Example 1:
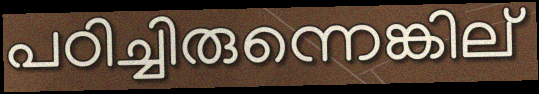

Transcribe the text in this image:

പഠിച്ചിരുന്നെങ്കില്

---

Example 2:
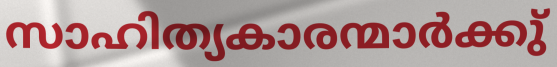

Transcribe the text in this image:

സാഹിത്യകാരന്മാർക്കു്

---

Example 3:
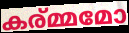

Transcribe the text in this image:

കര്മ്മമോ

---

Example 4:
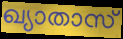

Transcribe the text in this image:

ഖ്യാതാസ്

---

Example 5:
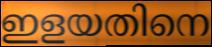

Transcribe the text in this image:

ഇളയതിനെ